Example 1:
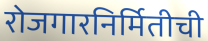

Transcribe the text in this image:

रोजगारनिर्मितीची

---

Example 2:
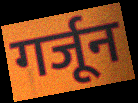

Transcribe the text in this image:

गर्जून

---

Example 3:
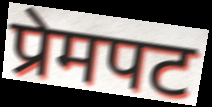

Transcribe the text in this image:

प्रेमपट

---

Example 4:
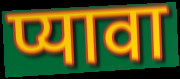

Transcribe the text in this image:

प्यावा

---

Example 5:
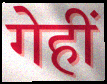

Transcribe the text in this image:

गेहीं